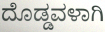
ದೊಡ್ಡವಳಾಗಿ